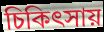
চিকিৎসায়